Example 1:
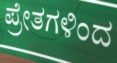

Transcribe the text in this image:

ಪ್ರೇತಗಳಿಂದ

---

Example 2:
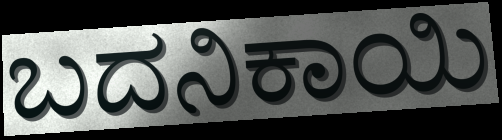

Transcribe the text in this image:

ಬದನಿಕಾಯಿ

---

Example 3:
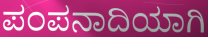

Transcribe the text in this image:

ಪಂಪನಾದಿಯಾಗಿ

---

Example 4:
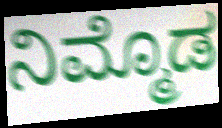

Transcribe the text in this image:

ನಿಮ್ಮೊಡ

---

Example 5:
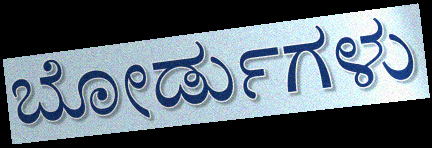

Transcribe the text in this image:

ಬೋರ್ಡುಗಳು